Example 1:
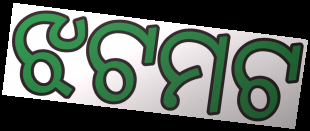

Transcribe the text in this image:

ଝଟମଟ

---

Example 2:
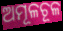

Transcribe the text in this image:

ଅମୂଳଚୂଳ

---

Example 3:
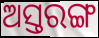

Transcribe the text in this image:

ଅସ୍ତରଙ୍ଗ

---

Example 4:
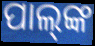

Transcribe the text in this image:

ପାଲ୍‌ଙ୍କ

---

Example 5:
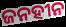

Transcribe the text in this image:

ଜନହୀନ